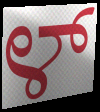
ಳ್